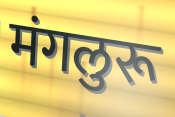
मंगलुरू